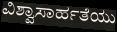
ವಿಶ್ವಾಸಾರ್ಹತೆಯು